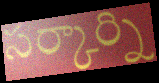
సర్కార్ని